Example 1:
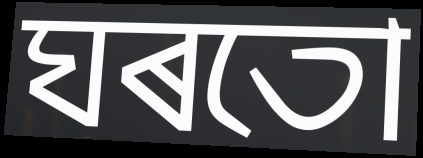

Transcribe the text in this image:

ঘৰতো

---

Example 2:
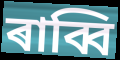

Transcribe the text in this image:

ৰাব্বি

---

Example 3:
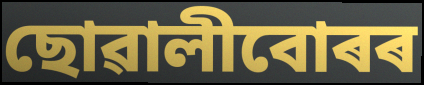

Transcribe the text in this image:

ছোৱালীবোৰৰ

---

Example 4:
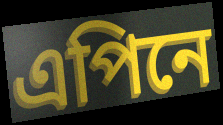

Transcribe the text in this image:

এপিনে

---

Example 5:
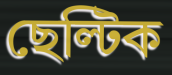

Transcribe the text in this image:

ছেল্টিক